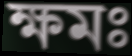
ক্ষমঃ